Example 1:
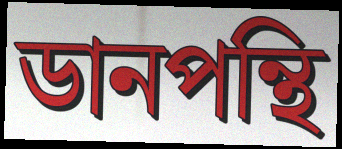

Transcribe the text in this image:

ডানপন্থি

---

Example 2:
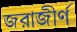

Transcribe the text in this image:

জরাজীর্ণ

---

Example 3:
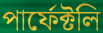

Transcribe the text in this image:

পার্ফেক্টলি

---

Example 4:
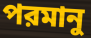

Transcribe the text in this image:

পরমানু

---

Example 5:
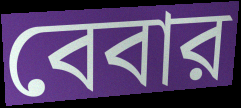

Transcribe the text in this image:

বেবার